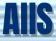
AIIS